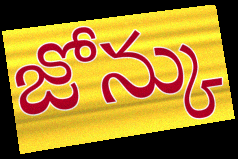
జోన్కు